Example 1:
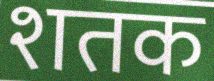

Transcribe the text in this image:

शतक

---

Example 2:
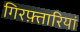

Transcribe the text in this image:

गिरफ़्तारियां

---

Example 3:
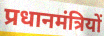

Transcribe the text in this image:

प्रधानमंत्रियों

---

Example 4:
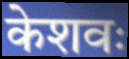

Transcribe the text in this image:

केशवः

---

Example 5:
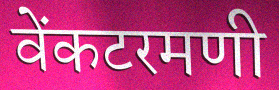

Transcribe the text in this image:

वेंकटरमणी